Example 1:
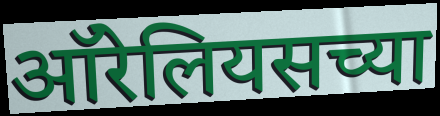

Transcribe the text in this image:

ऑरेलियसच्या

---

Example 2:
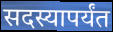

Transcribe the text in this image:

सदस्यापर्यंत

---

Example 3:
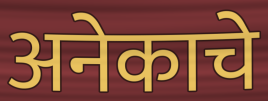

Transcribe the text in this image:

अनेकाचे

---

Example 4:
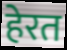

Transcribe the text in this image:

हेरत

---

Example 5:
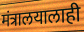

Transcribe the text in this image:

मंत्रालयालाही